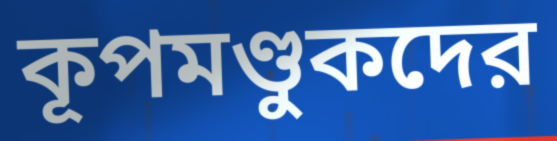
কূপমণ্ডুকদের